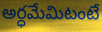
అర్ధమేమిటంటే